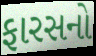
ફારસનો